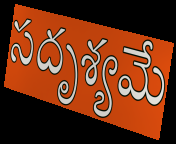
సదృశ్యమే